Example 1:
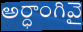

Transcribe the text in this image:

అర్ధాంగివై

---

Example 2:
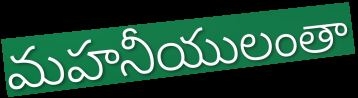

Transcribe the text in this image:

మహనీయులంతా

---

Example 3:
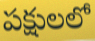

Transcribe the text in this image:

పక్షులలో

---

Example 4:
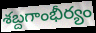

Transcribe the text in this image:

శబ్దగాంభీర్యం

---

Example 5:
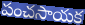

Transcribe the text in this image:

పంచసాయక